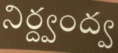
నిర్ద్వంద్వ